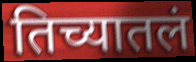
तिच्यातलं